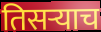
तिसऱ्याच